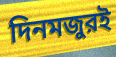
দিনমজুরই